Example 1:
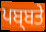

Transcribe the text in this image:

ਪਬ੍ਬਤੇ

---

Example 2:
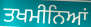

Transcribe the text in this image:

ਤਖਮੀਨਿਆਂ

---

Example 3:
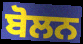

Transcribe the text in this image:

ਬੋਲਨ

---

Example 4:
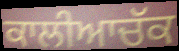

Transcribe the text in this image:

ਕਾਲੀਆਚੱਕ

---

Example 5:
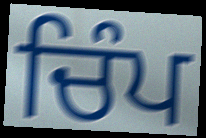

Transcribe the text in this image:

ਚਿੰਪ